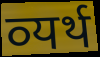
व्‍यर्थ